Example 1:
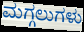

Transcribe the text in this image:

ಮಗ್ಗಲುಗಳು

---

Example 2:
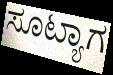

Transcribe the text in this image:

ಸೂಟ್ಯಾಗ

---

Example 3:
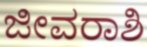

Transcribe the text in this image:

ಜೀವರಾಶಿ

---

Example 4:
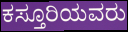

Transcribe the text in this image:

ಕಸ್ತೂರಿಯವರು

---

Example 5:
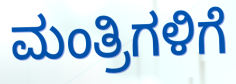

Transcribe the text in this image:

ಮಂತ್ರಿಗಳಿಗೆ